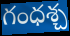
గంధశ్చ